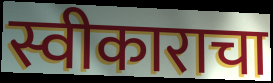
स्वीकाराचा